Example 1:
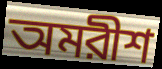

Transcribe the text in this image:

অমরীশ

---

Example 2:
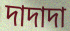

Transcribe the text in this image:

দাদাদা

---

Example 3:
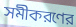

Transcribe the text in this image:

সমীকরণের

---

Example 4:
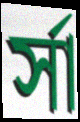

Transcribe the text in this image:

র্সা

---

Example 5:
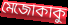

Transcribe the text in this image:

মেজোকাকু